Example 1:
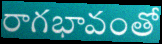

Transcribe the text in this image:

రాగభావంతో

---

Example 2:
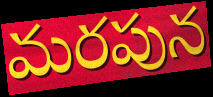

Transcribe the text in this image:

మరపున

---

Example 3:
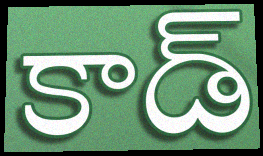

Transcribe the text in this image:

కాడ్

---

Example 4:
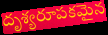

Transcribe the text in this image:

దృశ్యరూపకమైన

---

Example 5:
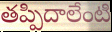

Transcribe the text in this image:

తప్పిదాలేంటి